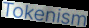
Tokenism